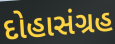
દોહાસંગ્રહ